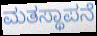
ಮತಸ್ಥಾಪನೆ